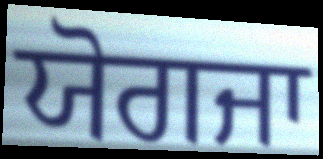
ਯੋਗਜਾ